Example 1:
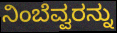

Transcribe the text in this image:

ನಿಂಬೆವ್ವರನ್ನು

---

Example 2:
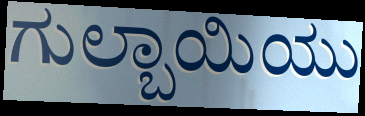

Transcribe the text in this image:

ಗುಲ್ಬಾಯಿಯು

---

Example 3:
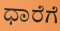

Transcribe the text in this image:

ಧಾರೆಗೆ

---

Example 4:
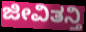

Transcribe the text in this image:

ಜೀವಿತನ್ತಿ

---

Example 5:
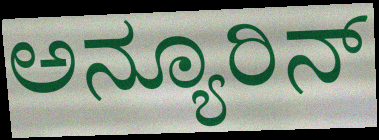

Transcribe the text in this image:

ಅನ್ಯೂರಿನ್